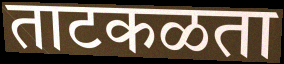
ताटकळता